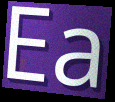
Ea